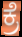
ಕ್ರೆ